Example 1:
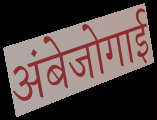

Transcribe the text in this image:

अंबेजोगाई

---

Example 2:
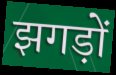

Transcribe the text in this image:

झगड़ों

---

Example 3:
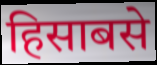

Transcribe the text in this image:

हिसाबसे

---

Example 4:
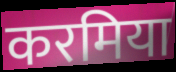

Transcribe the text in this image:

करमिया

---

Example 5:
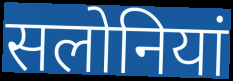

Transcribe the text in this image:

सलोनियां